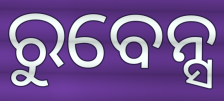
ରୁବେନ୍ସ